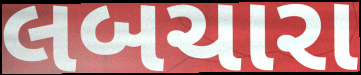
લબચારા